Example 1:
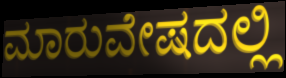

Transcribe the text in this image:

ಮಾರುವೇಷದಲ್ಲಿ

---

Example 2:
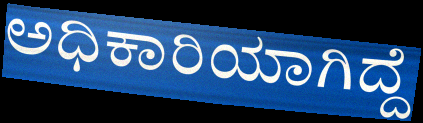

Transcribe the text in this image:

ಅಧಿಕಾರಿಯಾಗಿದ್ದೆ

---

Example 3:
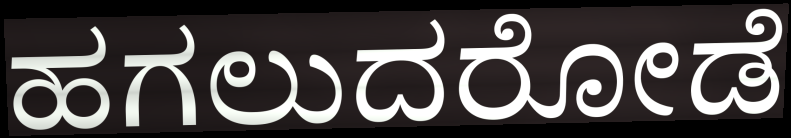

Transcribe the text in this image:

ಹಗಲುದರೋಡೆ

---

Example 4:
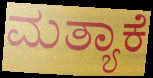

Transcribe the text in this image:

ಮತ್ಯಾಕೆ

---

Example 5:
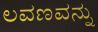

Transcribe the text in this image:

ಲವಣವನ್ನು